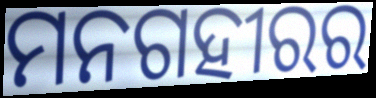
ମନଗହୀରର